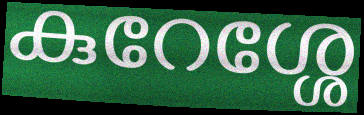
കുറേശ്ശേ